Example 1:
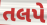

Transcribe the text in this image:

તલપે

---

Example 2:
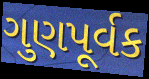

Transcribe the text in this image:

ગુણપૂર્વક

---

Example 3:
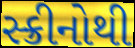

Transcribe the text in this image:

સ્ક્રીનોથી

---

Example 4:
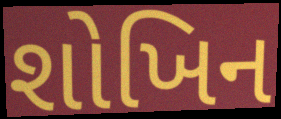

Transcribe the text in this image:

શોખિન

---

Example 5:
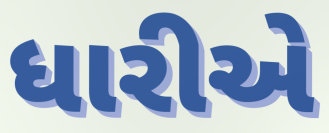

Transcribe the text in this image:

ધારીએ